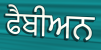
ਫੈਬੀਅਨ